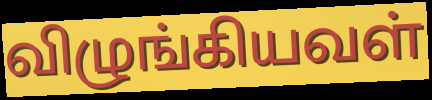
விழுங்கியவள்